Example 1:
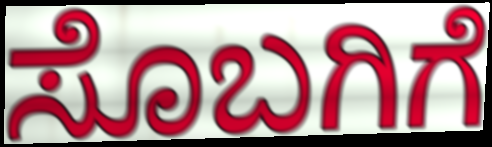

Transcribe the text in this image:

ಸೊಬಗಿಗೆ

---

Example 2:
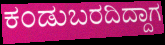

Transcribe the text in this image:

ಕಂಡುಬರದಿದ್ದಾಗ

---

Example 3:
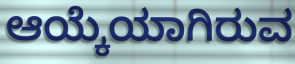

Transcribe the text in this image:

ಆಯ್ಕೆಯಾಗಿರುವ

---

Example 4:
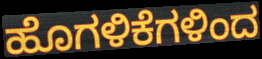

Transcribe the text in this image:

ಹೊಗಳಿಕೆಗಳಿಂದ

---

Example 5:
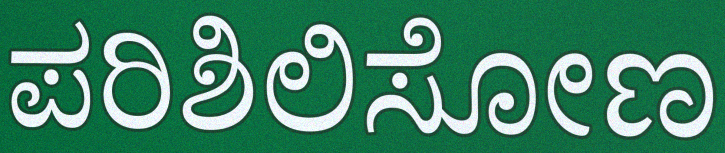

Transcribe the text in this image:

ಪರಿಶಿಲಿಸೋಣ